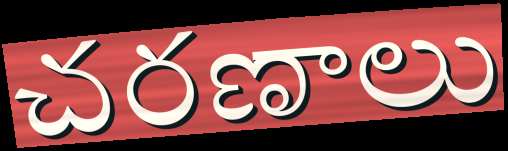
చరణాలు